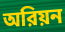
অরিয়ন